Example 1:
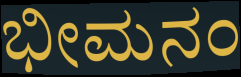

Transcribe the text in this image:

ಭೀಮನಂ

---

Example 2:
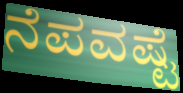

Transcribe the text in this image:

ನೆಪವಷ್ಟೆ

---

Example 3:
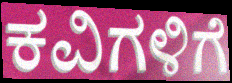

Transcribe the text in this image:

ಕವಿಗಳಿಗೆ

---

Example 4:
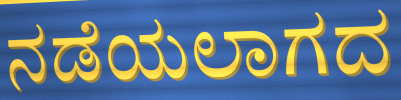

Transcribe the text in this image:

ನಡೆಯಲಾಗದ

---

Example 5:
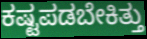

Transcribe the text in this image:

ಕಷ್ಟಪಡಬೇಕಿತ್ತು